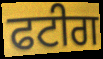
ਫਟੀਗ